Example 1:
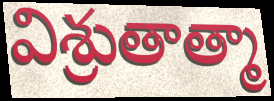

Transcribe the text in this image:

విశ్రుతాత్మా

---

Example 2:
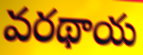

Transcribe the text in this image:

వరథాయ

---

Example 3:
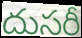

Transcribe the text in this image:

దుసరీ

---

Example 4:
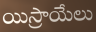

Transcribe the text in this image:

యిస్రాయేలు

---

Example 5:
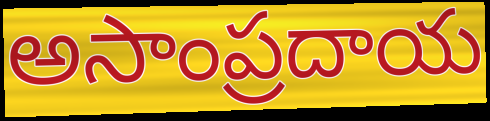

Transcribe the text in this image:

అసాంప్రదాయ